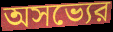
অসভ্যের